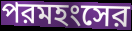
পরমহংসের